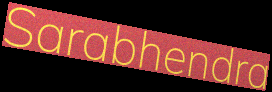
Sarabhendra